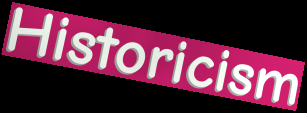
Historicism